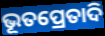
ଭୂତପ୍ରେତାଦି